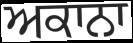
ਅਕਾਨਾ